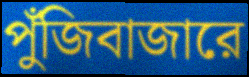
পুঁজিবাজারে